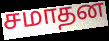
சமாதன